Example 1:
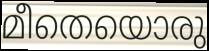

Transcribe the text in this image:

മീതെയൊരു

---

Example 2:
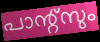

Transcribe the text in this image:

പാന്റ്സും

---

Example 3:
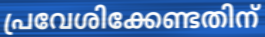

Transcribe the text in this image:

പ്രവേശിക്കേണ്ടതിന്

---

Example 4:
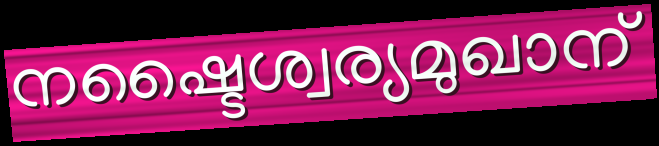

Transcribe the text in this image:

നഷ്ടൈശ്വര്യമുഖാന്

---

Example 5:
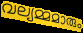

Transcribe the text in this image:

വല്യമ്മമാരും